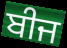
ਬੀਜ